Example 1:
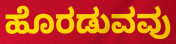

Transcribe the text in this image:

ಹೊರಡುವವು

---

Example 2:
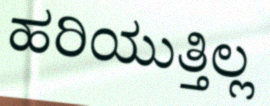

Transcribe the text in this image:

ಹರಿಯುತ್ತಿಲ್ಲ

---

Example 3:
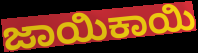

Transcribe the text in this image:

ಜಾಯಿಕಾಯಿ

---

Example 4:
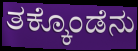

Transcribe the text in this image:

ತಕ್ಕೊಂಡೆನು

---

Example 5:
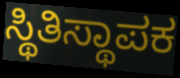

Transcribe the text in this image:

ಸ್ಥಿತಿಸ್ಥಾಪಕ